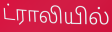
ட்ராலியில்